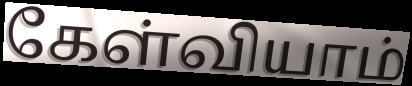
கேள்வியாம்